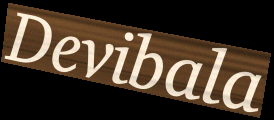
Devibala